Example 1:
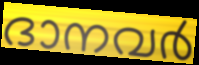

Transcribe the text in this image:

ദാനവർ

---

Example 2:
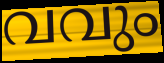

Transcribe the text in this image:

വവും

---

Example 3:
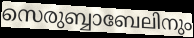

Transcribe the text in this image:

സെരുബ്ബാബേലിനും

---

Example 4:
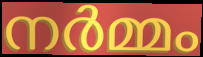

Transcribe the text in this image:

നർമ്മം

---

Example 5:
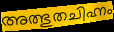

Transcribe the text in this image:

അത്ഭുതചിഹ്നം